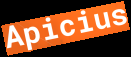
Apicius